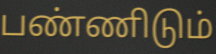
பண்ணிடும்